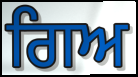
ਗਿਅ